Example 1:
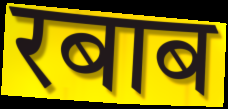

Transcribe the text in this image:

रबाब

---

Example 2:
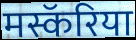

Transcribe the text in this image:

मस्कॅरिया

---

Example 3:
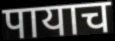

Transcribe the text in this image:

पायाच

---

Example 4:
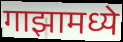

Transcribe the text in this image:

गाझामध्ये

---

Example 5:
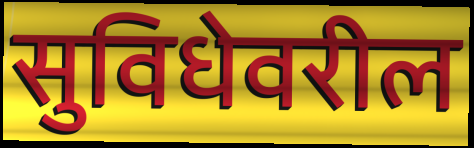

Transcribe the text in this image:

सुविधेवरील